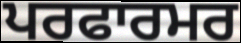
ਪਰਫਾਰਮਰ